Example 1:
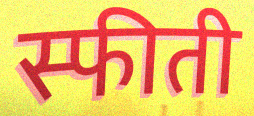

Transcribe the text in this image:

स्फीती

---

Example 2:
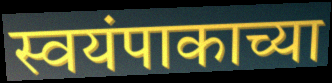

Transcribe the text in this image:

स्वयंपाकाच्या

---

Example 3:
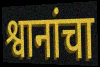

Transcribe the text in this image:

श्वानांचा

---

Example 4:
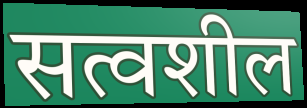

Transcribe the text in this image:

सत्वशील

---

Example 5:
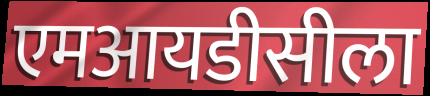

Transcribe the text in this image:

एमआयडीसीला